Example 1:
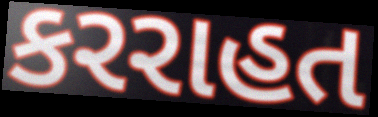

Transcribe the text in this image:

કરરાહત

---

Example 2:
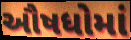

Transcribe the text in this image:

ઔષધોમાં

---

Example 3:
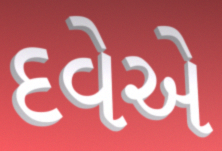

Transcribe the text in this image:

દવેએ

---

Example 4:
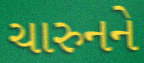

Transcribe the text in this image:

ચારુનને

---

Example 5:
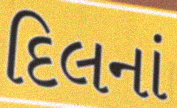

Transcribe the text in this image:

દિલનાં